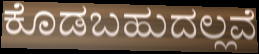
ಕೊಡಬಹುದಲ್ಲವೆ